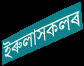
ইৰুলাসকলৰ